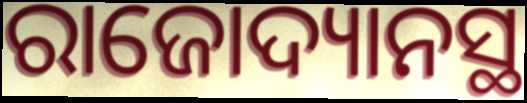
ରାଜୋଦ୍ୟାନସ୍ଥ